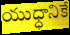
యుధ్ధానికే